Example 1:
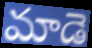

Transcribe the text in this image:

మాడె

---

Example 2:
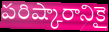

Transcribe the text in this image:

పరిష్కారానికై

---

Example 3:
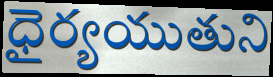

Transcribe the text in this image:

ధైర్యయుతుని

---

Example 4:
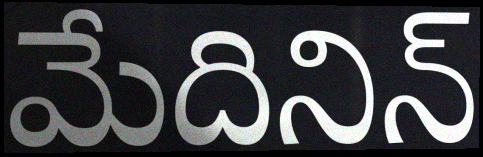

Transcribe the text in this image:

మేదినిన్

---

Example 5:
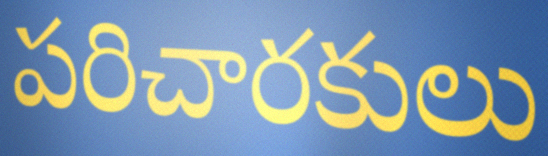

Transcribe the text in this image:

పరిచారకులు